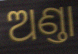
ଅଣ୍ତା